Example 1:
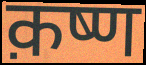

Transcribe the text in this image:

क़ष्ण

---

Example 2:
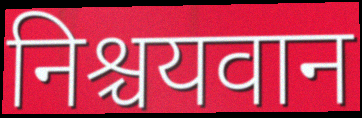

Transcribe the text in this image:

निश्चयवान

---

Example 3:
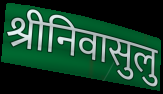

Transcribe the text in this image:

श्रीनिवासुलु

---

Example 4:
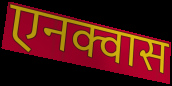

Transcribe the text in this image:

एनक्वास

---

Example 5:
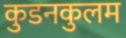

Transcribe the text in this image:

कुडनकुलम